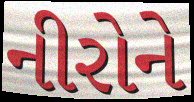
નીરોને